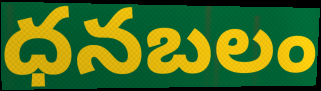
ధనబలం